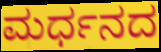
ಮರ್ಧನದ